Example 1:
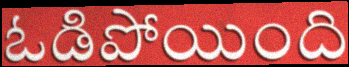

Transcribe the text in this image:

ఓడిపోయింది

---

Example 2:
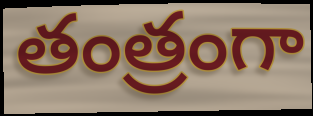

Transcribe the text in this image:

తంత్రంగా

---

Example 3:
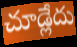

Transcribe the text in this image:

చూడ్లేదు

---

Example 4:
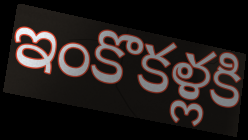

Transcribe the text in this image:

ఇంకొకళ్లకి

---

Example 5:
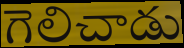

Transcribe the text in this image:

గెలిచాడు